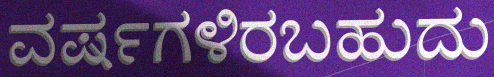
ವರ್ಷಗಳಿರಬಹುದು